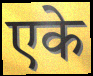
एके